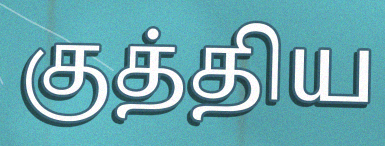
குத்திய